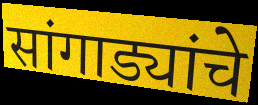
सांगाड्यांचे